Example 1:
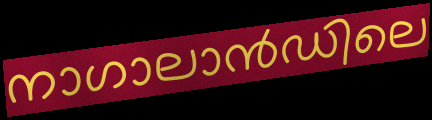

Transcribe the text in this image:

നാഗാലാൻഡിലെ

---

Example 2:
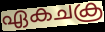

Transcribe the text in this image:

ഏകചക്ര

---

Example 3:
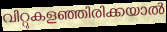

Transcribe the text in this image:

വിറ്റുകളഞ്ഞിരിക്കയാൽ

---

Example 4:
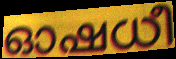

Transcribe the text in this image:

ഓഷധീ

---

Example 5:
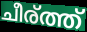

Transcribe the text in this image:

ചീര്ത്ത്